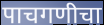
पाचगणीचा